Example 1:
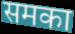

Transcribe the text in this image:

समका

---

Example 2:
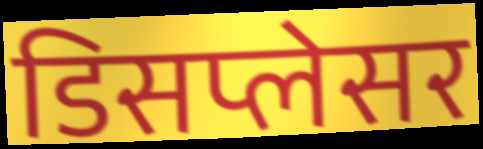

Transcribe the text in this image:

डिसप्लेसर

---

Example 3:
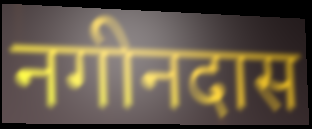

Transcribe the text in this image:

नगीनदास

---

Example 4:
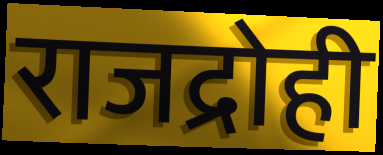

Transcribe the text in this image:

राजद्रोही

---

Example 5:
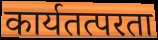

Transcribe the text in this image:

कार्यतत्परता